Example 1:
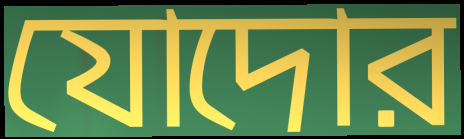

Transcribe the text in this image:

যোদোর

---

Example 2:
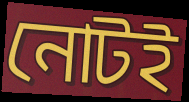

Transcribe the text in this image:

নোটই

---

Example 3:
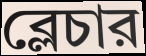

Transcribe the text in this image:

ব্লেচার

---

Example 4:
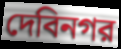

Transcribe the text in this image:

দেবিনগর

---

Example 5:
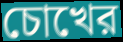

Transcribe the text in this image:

চোখের